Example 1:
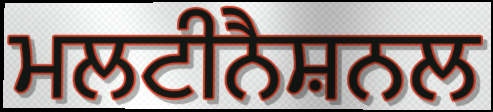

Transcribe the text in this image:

ਮਲਟੀਨੈਸ਼ਨਲ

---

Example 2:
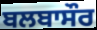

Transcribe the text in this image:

ਬਲਬਾਸੌਰ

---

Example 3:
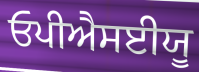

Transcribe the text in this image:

ਓਪੀਐਸਈਯੂ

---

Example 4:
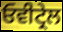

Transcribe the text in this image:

ਓਵੀਟ੍ਰੇਲ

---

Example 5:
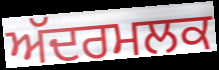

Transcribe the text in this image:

ਅੱਦਰਮਲਕ